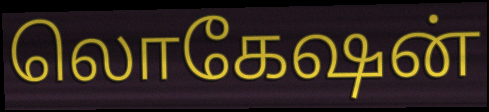
லொகேஷன்